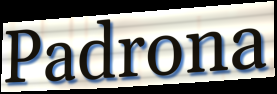
Padrona